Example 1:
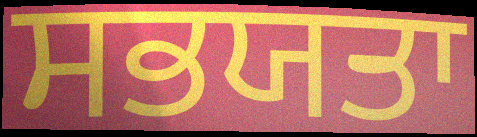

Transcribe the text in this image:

ਸਭਯਤਾ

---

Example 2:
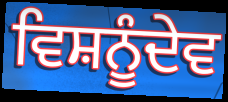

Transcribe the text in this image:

ਵਿਸ਼ਨੂੰਦੇਵ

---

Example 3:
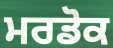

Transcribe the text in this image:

ਮਰਡੋਕ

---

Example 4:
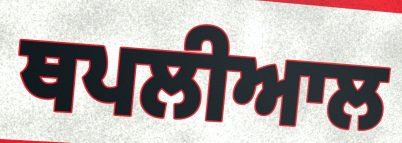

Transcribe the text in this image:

ਥਪਲੀਆਲ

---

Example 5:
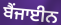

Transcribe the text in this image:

ਬੈਂਜਾਈਨ